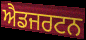
ਐਡਜਰਟਨ